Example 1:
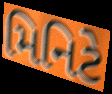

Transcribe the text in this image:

મિનિટે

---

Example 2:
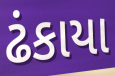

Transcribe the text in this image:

ઢંકાયા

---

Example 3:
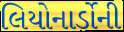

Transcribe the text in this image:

લિયોનાર્ડોની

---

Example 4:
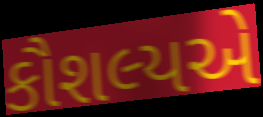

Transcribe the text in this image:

કૌશલ્યએ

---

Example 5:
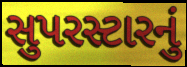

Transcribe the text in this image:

સુપરસ્ટારનું